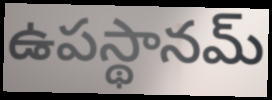
ఉపస్థానమ్